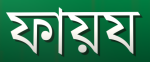
ফায়য